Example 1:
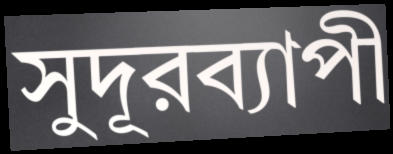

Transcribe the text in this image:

সুদূরব্যাপী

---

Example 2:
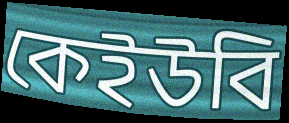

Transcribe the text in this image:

কেইউবি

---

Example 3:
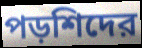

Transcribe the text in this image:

পড়শিদের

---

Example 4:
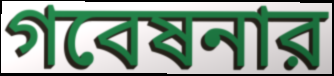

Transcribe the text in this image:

গবেষনার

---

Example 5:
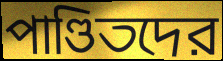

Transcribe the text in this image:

পাণ্ডিতদের